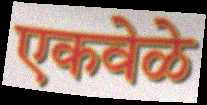
एकवेळे